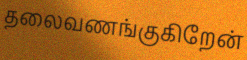
தலைவணங்குகிறேன்